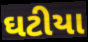
ઘટીયા